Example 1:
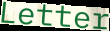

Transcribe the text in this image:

Letter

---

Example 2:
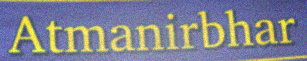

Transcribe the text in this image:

Atmanirbhar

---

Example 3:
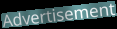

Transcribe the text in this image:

Advertisement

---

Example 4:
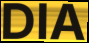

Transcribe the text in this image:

DIA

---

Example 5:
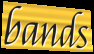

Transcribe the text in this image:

bands